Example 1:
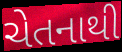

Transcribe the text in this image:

ચેતનાથી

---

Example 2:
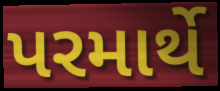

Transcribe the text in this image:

પરમાર્થે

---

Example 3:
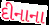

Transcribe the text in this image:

દીનાના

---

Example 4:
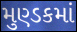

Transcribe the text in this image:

મુણ્ડકમાં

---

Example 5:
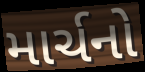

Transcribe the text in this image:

માર્ચનો